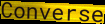
Converse